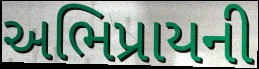
અભિપ્રાયની